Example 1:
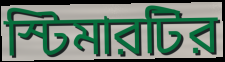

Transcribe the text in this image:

স্টিমারটির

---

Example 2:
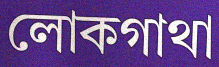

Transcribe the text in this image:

লোকগাথা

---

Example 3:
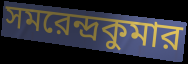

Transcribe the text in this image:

সমরেন্দ্রকুমার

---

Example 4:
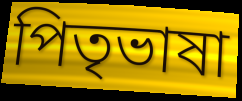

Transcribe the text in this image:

পিতৃভাষা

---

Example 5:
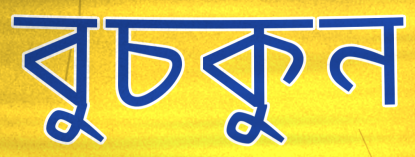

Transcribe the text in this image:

বুচকুন